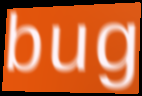
bug